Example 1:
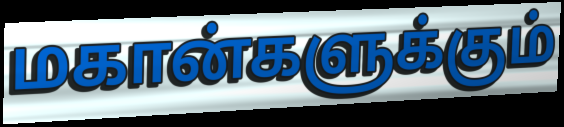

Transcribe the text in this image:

மகான்களுக்கும்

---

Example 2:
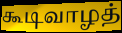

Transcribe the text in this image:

கூடிவாழத்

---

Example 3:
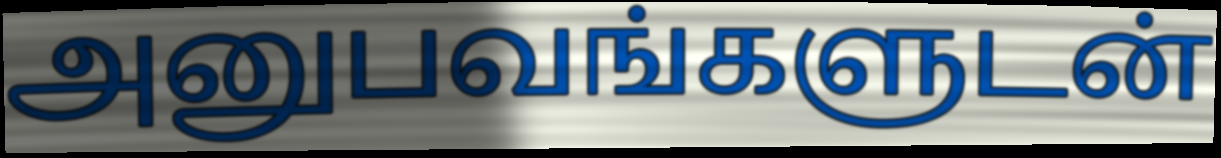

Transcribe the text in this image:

அனுபவங்களுடன்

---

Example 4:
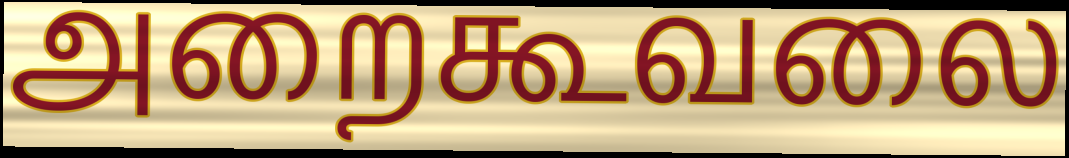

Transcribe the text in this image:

அறைகூவலை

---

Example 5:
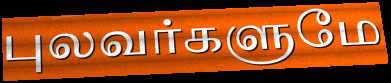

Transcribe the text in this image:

புலவர்களுமே